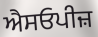
ਐਸਓਪੀਜ਼